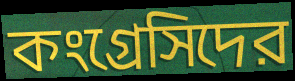
কংগ্রেসিদের